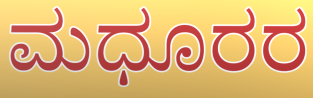
ಮಧೂರರ